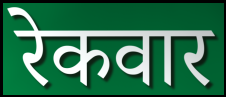
रेकवार